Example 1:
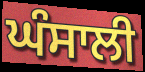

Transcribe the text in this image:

ਘੰਸਾਲੀ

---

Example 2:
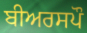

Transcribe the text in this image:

ਬੀਅਰਸਪੌ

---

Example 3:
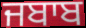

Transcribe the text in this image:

ਜਬਾਬ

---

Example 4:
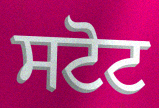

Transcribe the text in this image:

ਸਟੋਟ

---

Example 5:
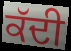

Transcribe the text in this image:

ਕੱਦੀ